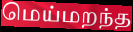
மெய்மறந்த